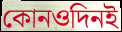
কোনওদিনই